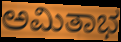
ಅಮಿತಾಭ